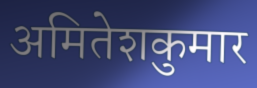
अमितेशकुमार